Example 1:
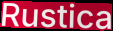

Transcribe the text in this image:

Rustica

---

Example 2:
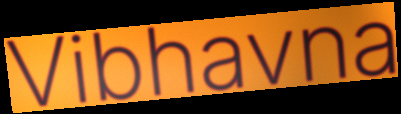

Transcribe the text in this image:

Vibhavna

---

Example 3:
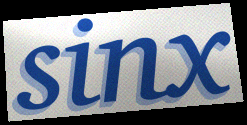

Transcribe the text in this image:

sinx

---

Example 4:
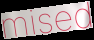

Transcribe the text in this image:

mised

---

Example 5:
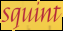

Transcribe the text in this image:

squint